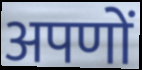
अपणों